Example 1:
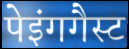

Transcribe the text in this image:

पेइंगगैस्ट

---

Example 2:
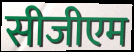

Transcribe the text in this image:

सीजीएम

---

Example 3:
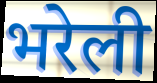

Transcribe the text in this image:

भरेली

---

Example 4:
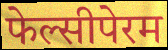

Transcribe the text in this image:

फेल्सीपेरम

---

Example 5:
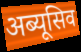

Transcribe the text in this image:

अब्यूसिव